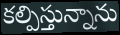
కల్పిస్తున్నాను